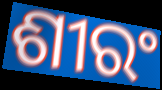
ଶୀରଂ